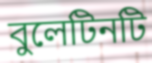
বুলেটিনটি